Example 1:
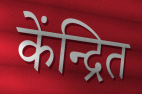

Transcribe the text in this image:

केंन्द्रित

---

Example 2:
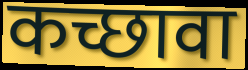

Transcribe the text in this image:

कच्छावा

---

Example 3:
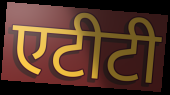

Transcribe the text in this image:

एटीटी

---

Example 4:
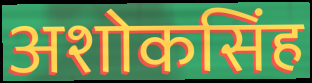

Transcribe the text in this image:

अशोकसिंह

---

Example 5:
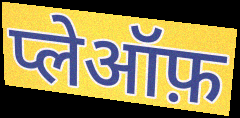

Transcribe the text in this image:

प्लेऑफ़